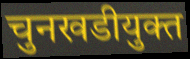
चुनखडीयुक्त